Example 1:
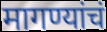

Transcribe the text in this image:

मागण्यांचं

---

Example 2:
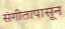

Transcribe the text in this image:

संगीतापासून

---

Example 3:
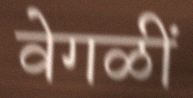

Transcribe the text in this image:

वेगळीं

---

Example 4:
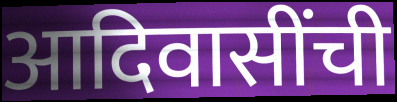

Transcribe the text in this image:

आदिवासींची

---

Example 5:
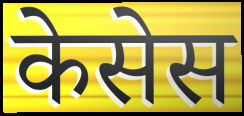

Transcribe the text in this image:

केसेस